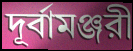
দূর্বামঞ্জরী